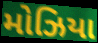
મોઝિયા